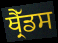
ਥ੍ਰੈੱਡਸ